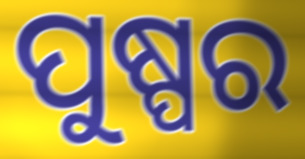
ପୁଷ୍ପର